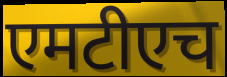
एमटीएच